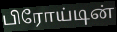
பிரோய்டின்